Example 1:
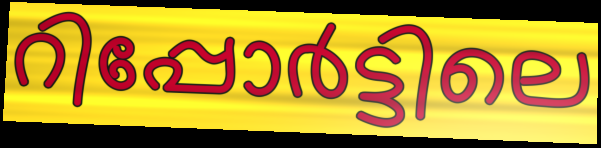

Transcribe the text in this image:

റിപ്പോർട്ടിലെ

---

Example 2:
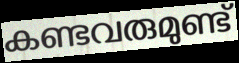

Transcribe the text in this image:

കണ്ടവരുമുണ്ട്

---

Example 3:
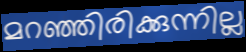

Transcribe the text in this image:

മറഞ്ഞിരിക്കുന്നില്ല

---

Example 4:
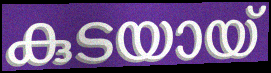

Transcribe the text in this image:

കുടയായ്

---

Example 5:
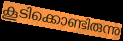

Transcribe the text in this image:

കൂടിക്കൊണ്ടിരുന്നു